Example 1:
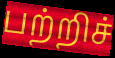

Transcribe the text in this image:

பற்றிச்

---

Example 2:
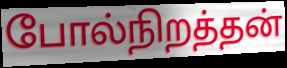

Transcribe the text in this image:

போல்நிறத்தன்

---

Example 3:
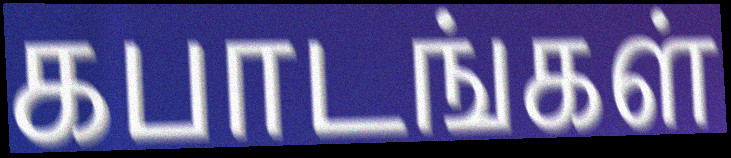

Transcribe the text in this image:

கபாடங்கள்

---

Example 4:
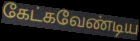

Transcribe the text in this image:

கேட்கவேண்டிய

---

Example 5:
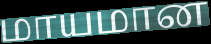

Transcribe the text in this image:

மாயமான